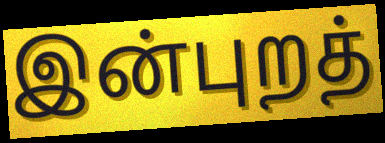
இன்புறத்